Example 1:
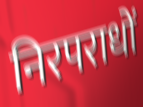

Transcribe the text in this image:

निरपराधों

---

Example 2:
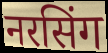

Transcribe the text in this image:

नरसिंग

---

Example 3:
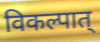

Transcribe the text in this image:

विकल्पात्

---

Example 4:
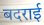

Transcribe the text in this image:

बदराई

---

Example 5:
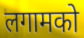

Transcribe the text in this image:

लगामको